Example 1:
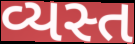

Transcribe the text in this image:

વ્યસ્ત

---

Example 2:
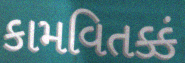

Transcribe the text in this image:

કામવિતક્કં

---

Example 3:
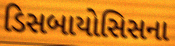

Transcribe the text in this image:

ડિસબાયોસિસના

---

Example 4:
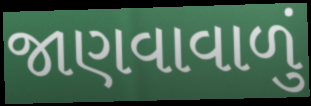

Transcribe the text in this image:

જાણવાવાળું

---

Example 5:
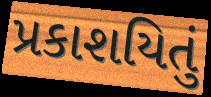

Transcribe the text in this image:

પ્રકાશયિતું